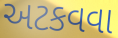
અટકવવા